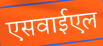
एसवाईएल